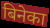
बिनेका